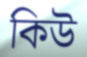
কিউ